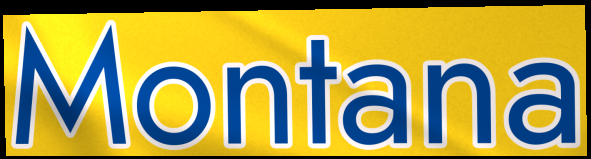
Montana